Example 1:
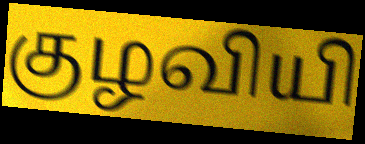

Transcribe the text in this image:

குழவியி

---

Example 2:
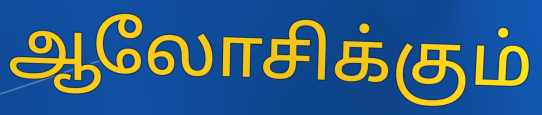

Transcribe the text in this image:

ஆலோசிக்கும்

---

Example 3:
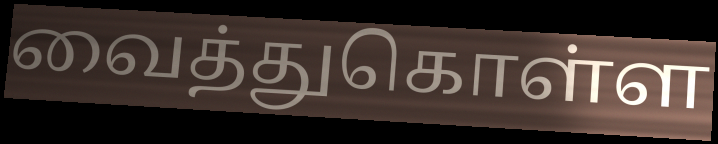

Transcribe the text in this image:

வைத்துகொள்ள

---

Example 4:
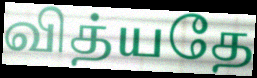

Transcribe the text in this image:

வித்யதே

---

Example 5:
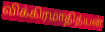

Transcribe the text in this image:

விக்கிரமாதித்யன்